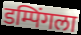
डम्पिंगला